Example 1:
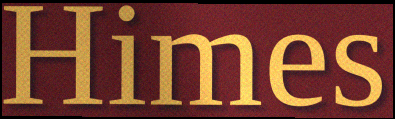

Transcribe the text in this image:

Himes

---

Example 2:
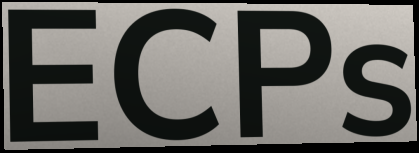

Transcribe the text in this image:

ECPs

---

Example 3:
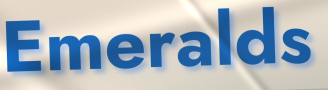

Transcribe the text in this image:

Emeralds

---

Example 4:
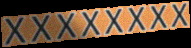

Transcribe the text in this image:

xxxxxxxx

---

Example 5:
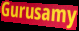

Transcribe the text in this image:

Gurusamy